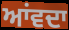
ਆਂਵਦਾ